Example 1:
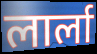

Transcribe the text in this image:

लार्ला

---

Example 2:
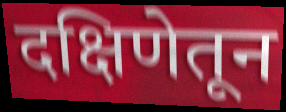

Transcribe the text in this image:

दक्षिणेतून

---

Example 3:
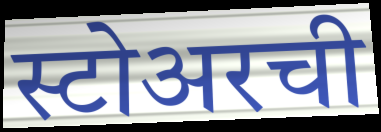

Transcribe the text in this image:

स्टोअरची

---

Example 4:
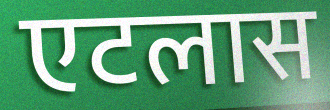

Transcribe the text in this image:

एटलास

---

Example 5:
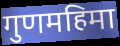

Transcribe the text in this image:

गुणमहिमा